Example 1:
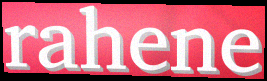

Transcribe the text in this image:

rahene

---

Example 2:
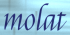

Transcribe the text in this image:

molat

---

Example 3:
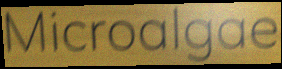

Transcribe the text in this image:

Microalgae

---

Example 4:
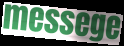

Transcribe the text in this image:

messege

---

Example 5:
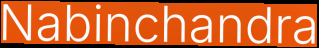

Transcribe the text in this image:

Nabinchandra